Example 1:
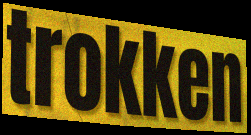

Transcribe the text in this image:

trokken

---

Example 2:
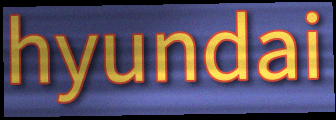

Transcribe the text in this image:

hyundai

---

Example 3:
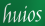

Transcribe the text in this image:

huios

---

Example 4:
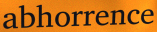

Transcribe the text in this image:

abhorrence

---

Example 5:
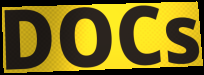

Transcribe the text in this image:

DOCs